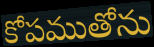
కోపముతోను